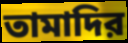
তামাদির